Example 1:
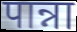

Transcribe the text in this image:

पान्ना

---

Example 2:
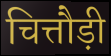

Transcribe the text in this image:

चित्तौड़ी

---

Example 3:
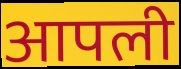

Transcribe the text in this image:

आपली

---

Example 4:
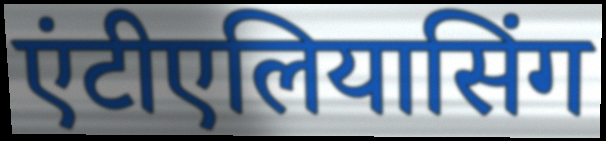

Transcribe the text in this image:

एंटीएलियासिंग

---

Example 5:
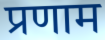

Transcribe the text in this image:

प्रणाम